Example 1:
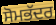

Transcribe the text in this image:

ਸੋਮਭੱਦਰ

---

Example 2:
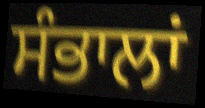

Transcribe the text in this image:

ਸੰਭਾਲਾਂ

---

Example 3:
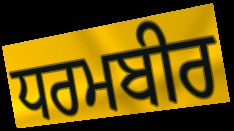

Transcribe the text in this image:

ਧਰਮਬੀਰ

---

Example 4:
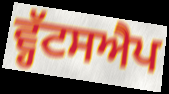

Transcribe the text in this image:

ਵ੍ਹੱਟਸਐਪ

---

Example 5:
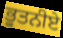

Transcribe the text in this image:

ਭੂਤਨੀਏ